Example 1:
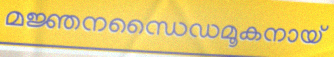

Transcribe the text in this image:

മജ്ഞനന്ധൈഡമൂകനായ്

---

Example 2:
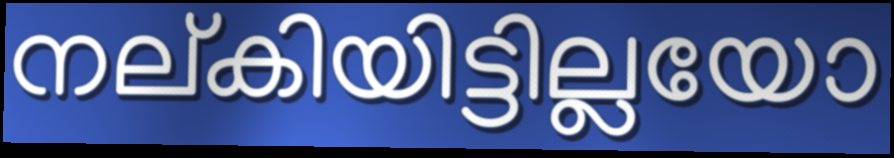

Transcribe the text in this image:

നല്കിയിട്ടില്ലയോ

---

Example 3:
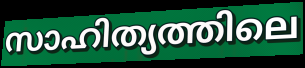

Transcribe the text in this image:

സാഹിത്യത്തിലെ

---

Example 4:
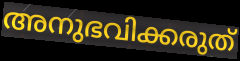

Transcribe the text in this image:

അനുഭവിക്കരുത്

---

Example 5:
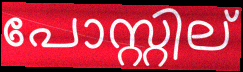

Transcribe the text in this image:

പോസ്റ്റില്